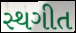
સ્થગીત